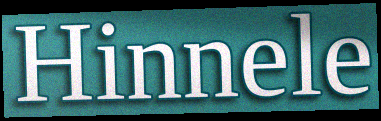
Hinnele